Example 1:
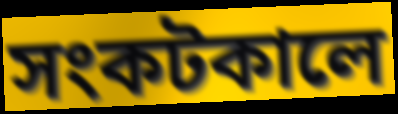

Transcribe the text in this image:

সংকটকালে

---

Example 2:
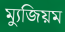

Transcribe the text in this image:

ম্যুজিয়ম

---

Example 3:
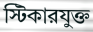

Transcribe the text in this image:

স্টিকারযুক্ত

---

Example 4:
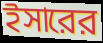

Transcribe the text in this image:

ইসারের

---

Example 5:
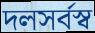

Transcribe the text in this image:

দলসর্বস্ব